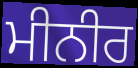
ਮੀਨੀਰ